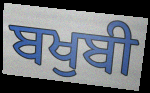
ਬਖੁਬੀ